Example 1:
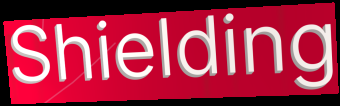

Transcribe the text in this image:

Shielding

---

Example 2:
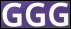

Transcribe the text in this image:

GGG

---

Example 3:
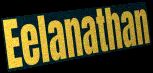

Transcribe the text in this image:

Eelanathan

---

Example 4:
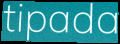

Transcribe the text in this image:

tipada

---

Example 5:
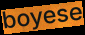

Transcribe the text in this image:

boyese